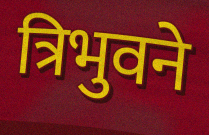
त्रिभुवने